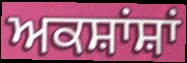
ਅਕਸ਼ਾਂਸ਼ਾਂ